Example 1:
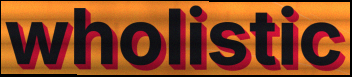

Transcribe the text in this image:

wholistic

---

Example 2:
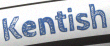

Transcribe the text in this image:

Kentish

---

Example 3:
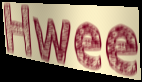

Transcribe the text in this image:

Hwee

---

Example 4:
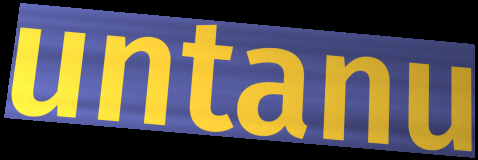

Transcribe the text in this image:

untanu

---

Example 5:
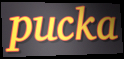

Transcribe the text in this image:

pucka